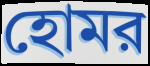
হোমর